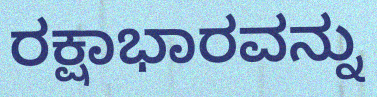
ರಕ್ಷಾಭಾರವನ್ನು